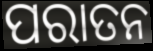
ପରାତନ